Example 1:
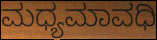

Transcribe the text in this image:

ಮಧ್ಯಮಾವಧಿ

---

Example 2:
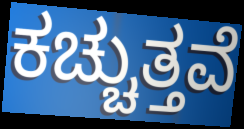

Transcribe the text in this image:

ಕಚ್ಚುತ್ತವೆ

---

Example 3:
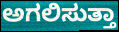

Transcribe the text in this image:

ಅಗಲಿಸುತ್ತಾ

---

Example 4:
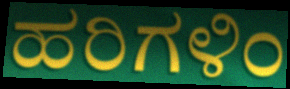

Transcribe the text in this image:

ಹರಿಗಳಿಂ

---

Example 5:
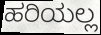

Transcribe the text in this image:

ಹರಿಯಲ್ಲ